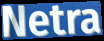
Netra